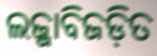
ଲଜ୍ଜାବିଜଡ଼ିତ